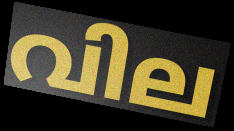
വില